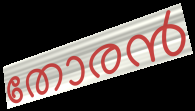
തോരൻ